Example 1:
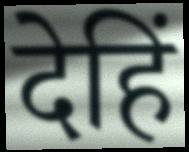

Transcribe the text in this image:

देहिं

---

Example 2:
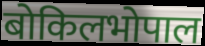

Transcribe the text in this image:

बोकिलभोपाल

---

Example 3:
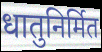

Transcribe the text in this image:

धातुनिर्मित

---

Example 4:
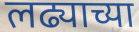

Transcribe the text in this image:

लढ्याच्या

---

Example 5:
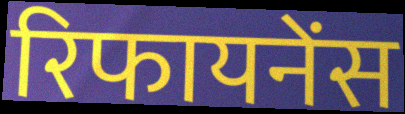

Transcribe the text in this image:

रिफायनेंस